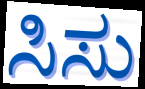
ಸಿಸು